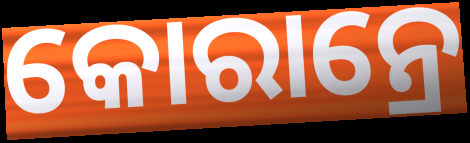
କୋରାନ୍ରେ